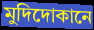
মুদিদোকানে